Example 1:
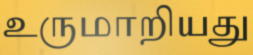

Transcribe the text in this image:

உருமாறியது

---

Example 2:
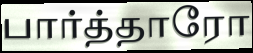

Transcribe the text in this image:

பார்த்தாரோ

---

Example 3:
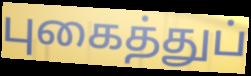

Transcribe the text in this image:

புகைத்துப்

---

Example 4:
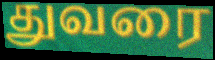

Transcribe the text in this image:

துவரை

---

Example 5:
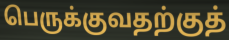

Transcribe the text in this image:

பெருக்குவதற்குத்